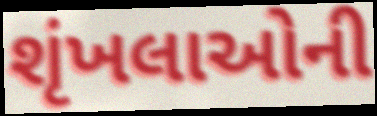
શૃંખલાઓની